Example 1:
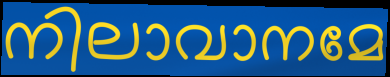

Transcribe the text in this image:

നിലാവാനമേ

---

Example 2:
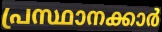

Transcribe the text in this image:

പ്രസ്ഥാനക്കാർ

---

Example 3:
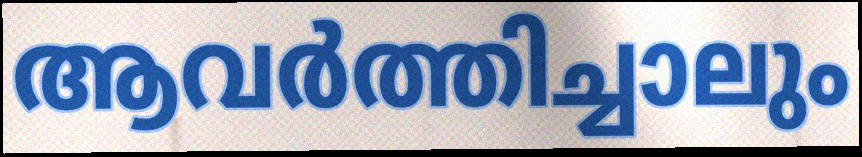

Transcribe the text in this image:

ആവർത്തിച്ചാലും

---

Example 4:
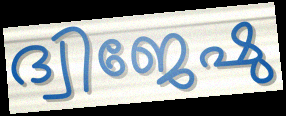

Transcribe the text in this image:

ദ്വിജേഷു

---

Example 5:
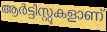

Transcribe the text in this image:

ആർട്ടിസ്റ്റുകളാണ്